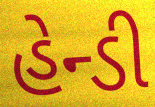
હેન્ડી